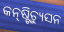
କନ୍‍ଷ୍ଟିଚ୍ୟୁସନ